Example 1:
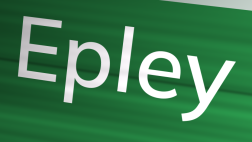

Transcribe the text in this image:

Epley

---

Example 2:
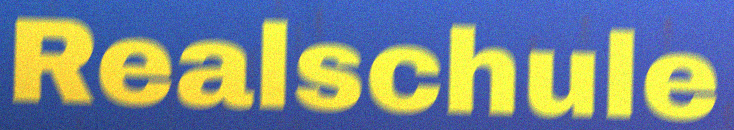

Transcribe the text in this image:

Realschule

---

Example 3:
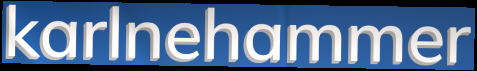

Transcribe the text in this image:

karlnehammer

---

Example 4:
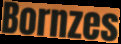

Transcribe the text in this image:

Bornzes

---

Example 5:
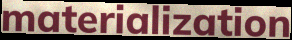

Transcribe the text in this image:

materialization